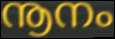
നൂനം